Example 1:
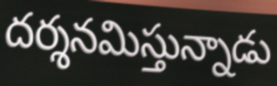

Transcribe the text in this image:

దర్శనమిస్తున్నాడు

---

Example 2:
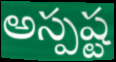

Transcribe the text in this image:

అస్పష్ట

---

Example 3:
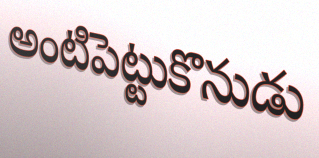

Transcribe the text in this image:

అంటిపెట్టుకొనుడు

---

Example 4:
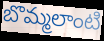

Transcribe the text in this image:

బొమ్మలాంటి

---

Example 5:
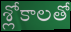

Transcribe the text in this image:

శ్లోకాలతో